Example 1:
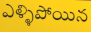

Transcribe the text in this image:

ఎళ్ళిపోయిన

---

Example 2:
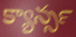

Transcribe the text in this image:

క్యాన్సర్‍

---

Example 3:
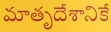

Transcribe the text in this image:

మాతృదేశానికే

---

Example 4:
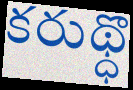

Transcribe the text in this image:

కరుథ్ధొ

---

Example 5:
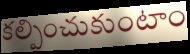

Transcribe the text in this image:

కల్పించుకుంటాం